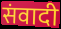
संवादी